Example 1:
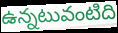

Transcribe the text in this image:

ఉన్నటువంటిది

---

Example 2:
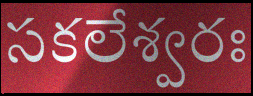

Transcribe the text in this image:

సకలేశ్వరః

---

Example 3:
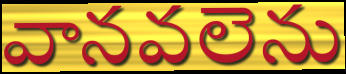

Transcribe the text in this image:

వానవలెను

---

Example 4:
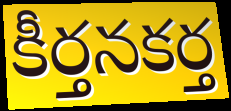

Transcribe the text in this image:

కీర్తనకర్త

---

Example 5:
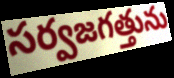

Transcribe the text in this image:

సర్వజగత్తును